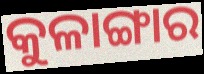
କୁଳାଙ୍ଗାର